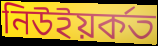
নিউইয়ৰ্কত